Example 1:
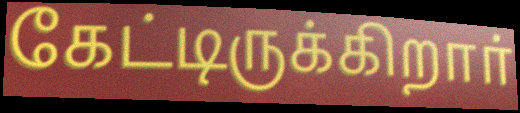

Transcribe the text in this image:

கேட்டிருக்கிறார்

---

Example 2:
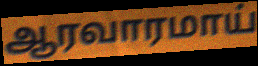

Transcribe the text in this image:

ஆரவாரமாய்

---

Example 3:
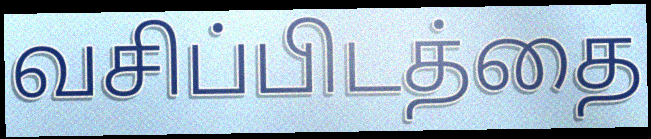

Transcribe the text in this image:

வசிப்பிடத்தை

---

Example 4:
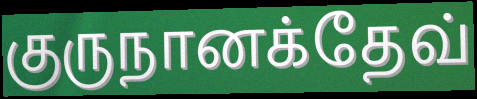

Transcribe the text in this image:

குருநானக்தேவ்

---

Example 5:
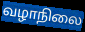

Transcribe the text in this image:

வழாநிலை